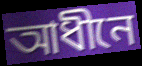
আধীনে